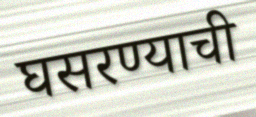
घसरण्याची